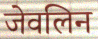
जेवलिन